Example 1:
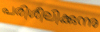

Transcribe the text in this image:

പരിശീലിക്കുന്നു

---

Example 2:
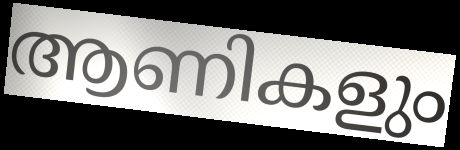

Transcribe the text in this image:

ആണികളും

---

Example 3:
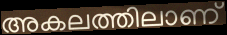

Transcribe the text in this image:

അകലത്തിലാണ്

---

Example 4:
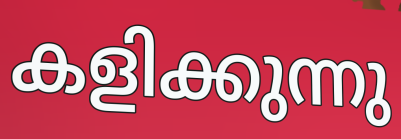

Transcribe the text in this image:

കളിക്കുന്നു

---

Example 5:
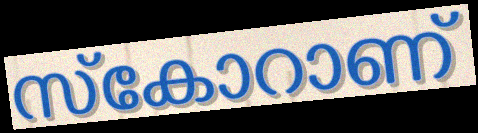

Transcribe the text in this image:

സ്‌കോറാണ്